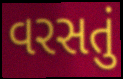
વરસતું